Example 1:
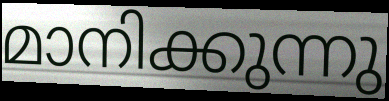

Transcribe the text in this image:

മാനിക്കുന്നു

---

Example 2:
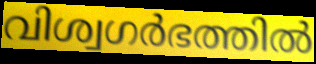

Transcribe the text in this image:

വിശ്വഗർഭത്തിൽ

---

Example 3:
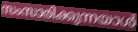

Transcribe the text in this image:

സംസാരിക്കുന്നയാൾ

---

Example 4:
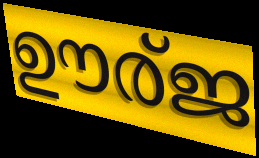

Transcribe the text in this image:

ഊര്ജ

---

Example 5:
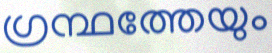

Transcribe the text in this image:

ഗ്രന്ഥത്തേയും